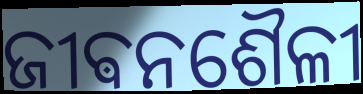
ଜୀଵନଶୈଳୀ